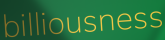
billiousness